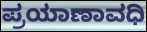
ಪ್ರಯಾಣಾವಧಿ